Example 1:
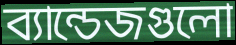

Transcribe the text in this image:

ব্যান্ডেজগুলো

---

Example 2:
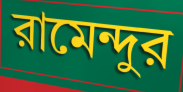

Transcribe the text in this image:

রামেন্দুর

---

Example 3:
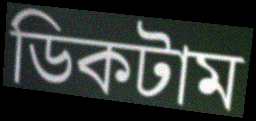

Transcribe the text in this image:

ডিকটাম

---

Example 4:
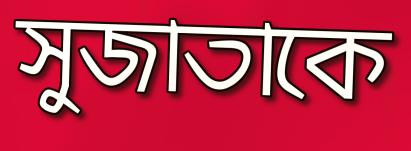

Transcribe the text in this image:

সুজাতাকে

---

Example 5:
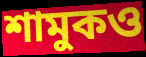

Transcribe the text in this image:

শামুকও